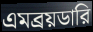
এমব্রয়ডারি